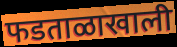
फडताळाखाली